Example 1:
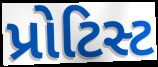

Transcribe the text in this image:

પ્રોટિસ્ટ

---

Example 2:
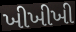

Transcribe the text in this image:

ખીખીખી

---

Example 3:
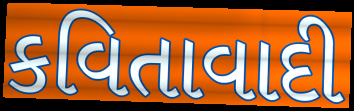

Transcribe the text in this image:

કવિતાવાદી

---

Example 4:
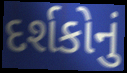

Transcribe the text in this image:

દર્શકોનું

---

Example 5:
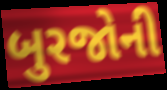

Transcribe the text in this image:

બુરજોની